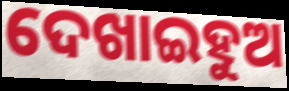
ଦେଖାଇହୁଅ